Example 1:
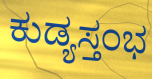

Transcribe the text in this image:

ಕುಡ್ಯಸ್ತಂಭ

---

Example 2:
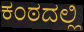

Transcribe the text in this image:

ಕಂಠದಲ್ಲಿ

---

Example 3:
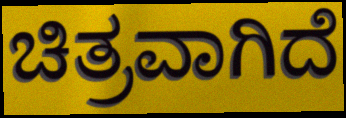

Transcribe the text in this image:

ಚಿತ್ರವಾಗಿದೆ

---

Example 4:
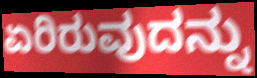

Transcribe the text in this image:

ಏರಿರುವುದನ್ನು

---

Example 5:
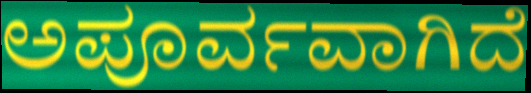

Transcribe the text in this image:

ಅಪೂರ್ವವಾಗಿದೆ